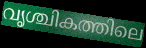
വൃശ്ചികത്തിലെ